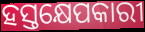
ହସ୍ତକ୍ଷେପକାରୀ